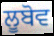
ਲੂਬੋਵ